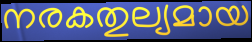
നരകതുല്യമായ